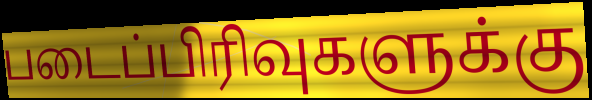
படைப்பிரிவுகளுக்கு